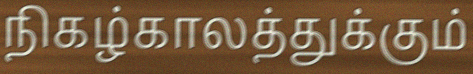
நிகழ்காலத்துக்கும்